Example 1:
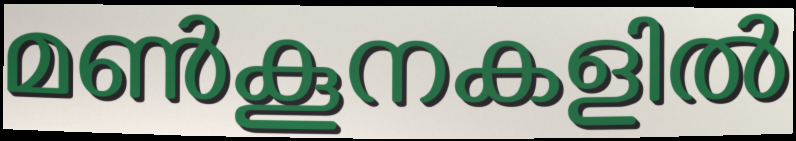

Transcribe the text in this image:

മൺകൂനകളിൽ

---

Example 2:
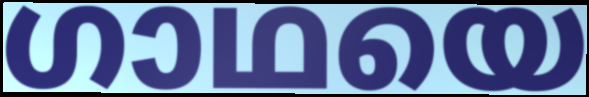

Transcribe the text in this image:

ഗാഥയെ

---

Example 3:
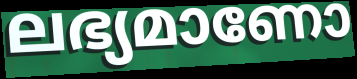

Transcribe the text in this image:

ലഭ്യമാണോ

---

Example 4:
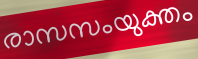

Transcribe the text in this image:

രാസസംയുക്തം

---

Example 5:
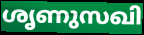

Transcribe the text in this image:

ശൃണുസഖി